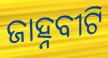
ଜାହ୍ନବୀଟି